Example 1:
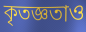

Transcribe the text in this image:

কৃতজ্ঞতাও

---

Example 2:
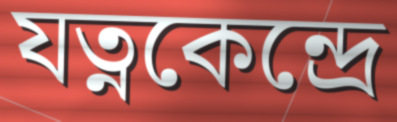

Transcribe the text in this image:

যত্নকেন্দ্রে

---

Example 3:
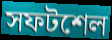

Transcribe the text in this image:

সফটশেল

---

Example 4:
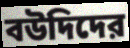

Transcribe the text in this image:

বউদিদের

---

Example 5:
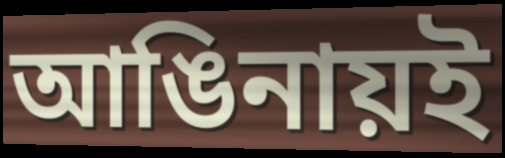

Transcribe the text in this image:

আঙিনায়ই